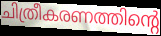
ചിത്രീകരണത്തിന്റെ